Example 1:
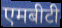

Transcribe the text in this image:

एमबीटी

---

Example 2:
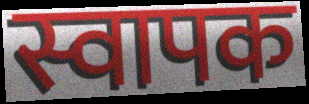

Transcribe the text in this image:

स्‍वापक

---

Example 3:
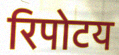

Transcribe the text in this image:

रिपोटय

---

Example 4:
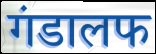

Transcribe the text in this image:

गंडालफ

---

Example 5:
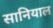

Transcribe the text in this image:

सानियाल